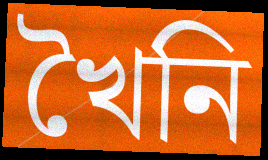
খৈনি